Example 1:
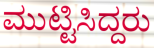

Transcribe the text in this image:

ಮುಟ್ಟಿಸಿದ್ದರು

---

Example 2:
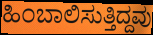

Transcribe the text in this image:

ಹಿಂಬಾಲಿಸುತ್ತಿದ್ದವು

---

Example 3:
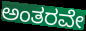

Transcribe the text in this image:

ಅಂತರವೇ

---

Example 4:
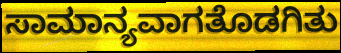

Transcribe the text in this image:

ಸಾಮಾನ್ಯವಾಗತೊಡಗಿತು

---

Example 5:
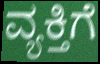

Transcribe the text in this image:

ವ್ಯಕ್ತಿಗೆ